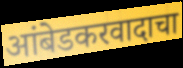
आंबेडकरवादाचा